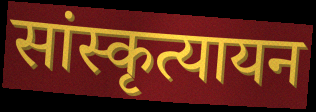
सांस्कृत्यायन